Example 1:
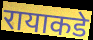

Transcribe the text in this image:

रायाकडे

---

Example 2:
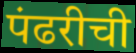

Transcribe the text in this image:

पंढरीची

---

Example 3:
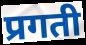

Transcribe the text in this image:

प्रगती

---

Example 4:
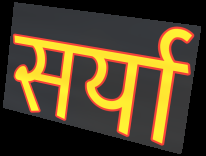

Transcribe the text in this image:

सर्या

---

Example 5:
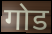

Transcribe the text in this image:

गोड